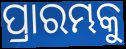
ପ୍ରାରମ୍ଭକୁ